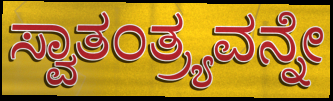
ಸ್ವಾತಂತ್ರ್ಯವನ್ನೇ